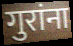
गुरांना